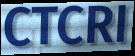
CTCRI